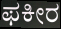
ಫಕೀರ